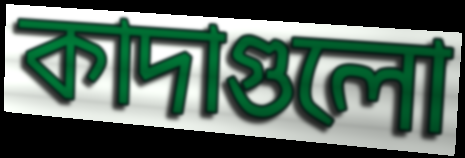
কাদাগুলো